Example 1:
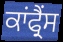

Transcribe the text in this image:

ਕਾਂਫ੍ਰੈਂਸ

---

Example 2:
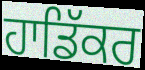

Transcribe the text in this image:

ਹਾਡਿੱਕਰ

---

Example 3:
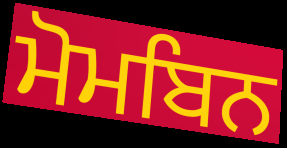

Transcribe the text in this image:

ਮੋਮਬਿਨ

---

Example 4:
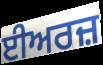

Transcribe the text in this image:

ਈਅਰਜ਼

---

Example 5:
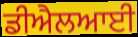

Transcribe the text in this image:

ਡੀਐਲਆਈ